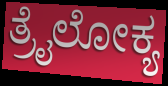
ತ್ರೈಲೋಕ್ಯ